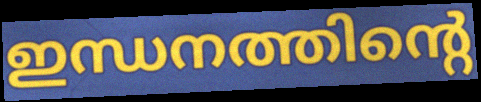
ഇന്ധനത്തിന്റെ